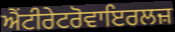
ਐਂਟੀਰੇਟਰੋਵਾਇਰਲਜ਼